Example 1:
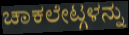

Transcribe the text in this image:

ಚಾಕಲೇಟ್ಗಳನ್ನು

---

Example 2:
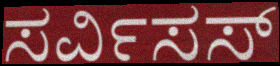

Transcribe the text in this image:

ಸರ್ವಿಸಸ್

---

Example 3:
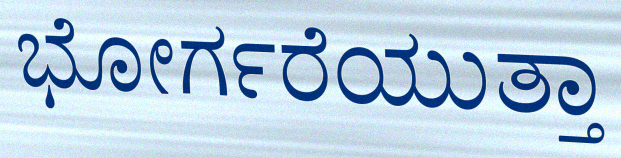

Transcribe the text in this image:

ಭೋರ್ಗರೆಯುತ್ತಾ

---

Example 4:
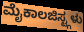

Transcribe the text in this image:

ಮೈಕಾಲಜಿಸ್ಟ್ಗಳು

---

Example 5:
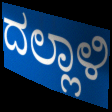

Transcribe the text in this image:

ದಲ್ಲಾಳಿ